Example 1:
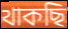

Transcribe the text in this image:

থাকছি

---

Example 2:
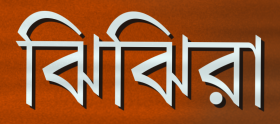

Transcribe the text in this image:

ঝিঝিরা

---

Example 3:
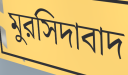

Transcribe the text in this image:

মুরসিদাবাদ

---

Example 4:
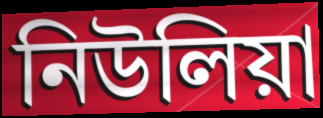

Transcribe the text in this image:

নিউলিয়া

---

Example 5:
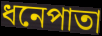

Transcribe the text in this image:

ধনেপাতা